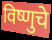
विष्णुचे